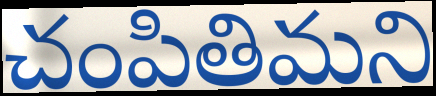
చంపితిమని